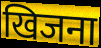
खिजना